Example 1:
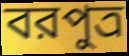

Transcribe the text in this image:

বরপুত্র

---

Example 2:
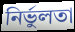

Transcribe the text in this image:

নির্ভুলতা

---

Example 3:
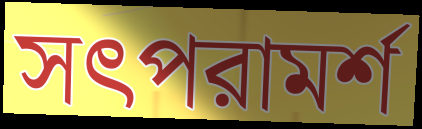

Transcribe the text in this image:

সৎপরামর্শ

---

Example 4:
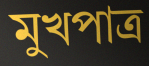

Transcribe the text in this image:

মুখপাত্র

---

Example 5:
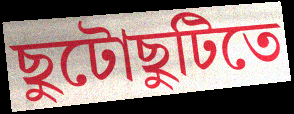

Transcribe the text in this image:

ছুটোছুটিতে